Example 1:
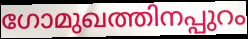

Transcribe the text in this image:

ഗോമുഖത്തിനപ്പുറം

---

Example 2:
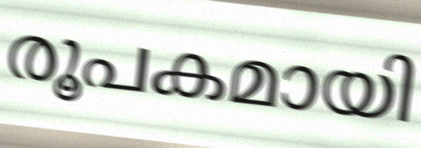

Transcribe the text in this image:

രൂപകമായി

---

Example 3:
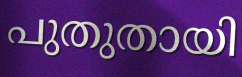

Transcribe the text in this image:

പുതുതായി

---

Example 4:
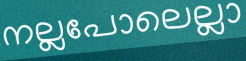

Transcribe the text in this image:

നല്ലപോലെല്ലാ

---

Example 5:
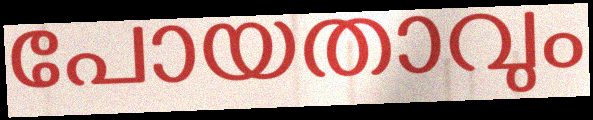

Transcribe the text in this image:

പോയതാവും